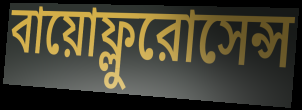
বায়োফ্লুরোসেন্স